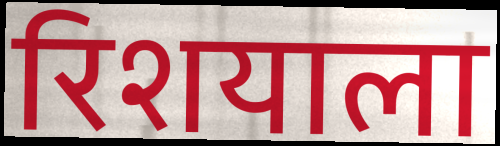
रिशयाला